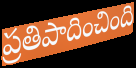
ప్రతిపాదించింది